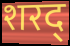
शरद्